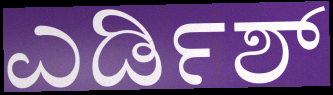
ಎರ್ಡಿಶ್